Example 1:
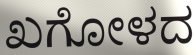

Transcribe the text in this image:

ಖಗೋಳದ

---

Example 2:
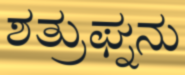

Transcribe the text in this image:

ಶತ್ರುಘ್ನನು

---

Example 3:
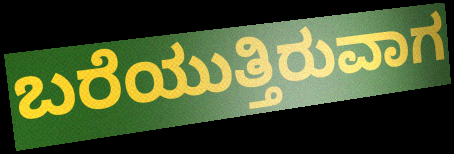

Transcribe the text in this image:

ಬರೆಯುತ್ತಿರುವಾಗ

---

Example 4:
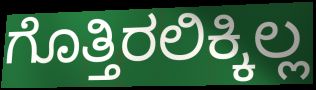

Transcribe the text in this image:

ಗೊತ್ತಿರಲಿಕ್ಕಿಲ್ಲ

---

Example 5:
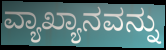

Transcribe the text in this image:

ವ್ಯಾಖ್ಯಾನವನ್ನು